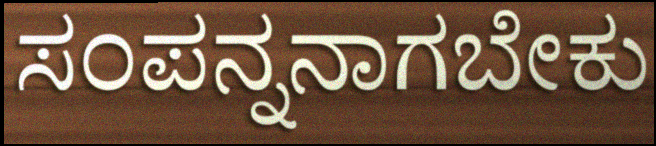
ಸಂಪನ್ನನಾಗಬೇಕು